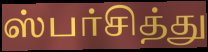
ஸ்பர்சித்து